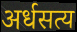
अर्धसत्य